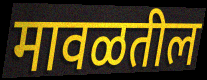
मावळतील